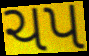
ચપ